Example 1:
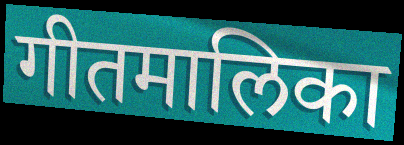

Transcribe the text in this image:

गीतमालिका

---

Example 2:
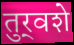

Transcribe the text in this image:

तुर्वशे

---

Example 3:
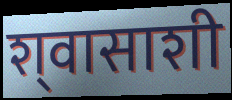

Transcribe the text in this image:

श्वासाशी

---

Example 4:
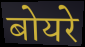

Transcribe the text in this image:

बोयरे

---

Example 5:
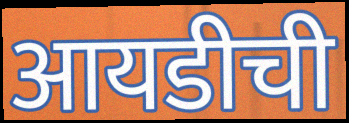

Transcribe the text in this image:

आयडीची